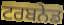
ਟਰਬਨੇਡ